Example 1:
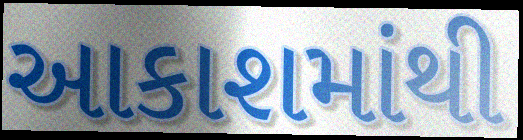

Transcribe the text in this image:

આકાશમાંથી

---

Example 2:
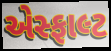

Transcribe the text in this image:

એસ્ફાલ્ટ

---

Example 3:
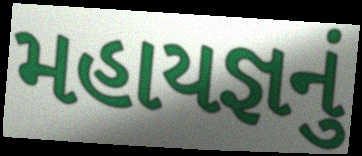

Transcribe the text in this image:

મહાયજ્ઞનું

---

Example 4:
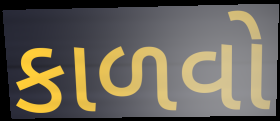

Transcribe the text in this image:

કાળવો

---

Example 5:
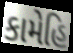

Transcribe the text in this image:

કામેહિ